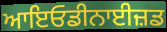
ਆਇਓਡੀਨਾਈਜ਼ਡ